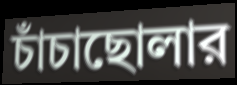
চাঁচাছোলার